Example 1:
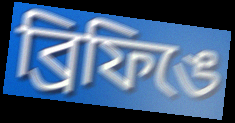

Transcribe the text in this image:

ব্রিফিঙে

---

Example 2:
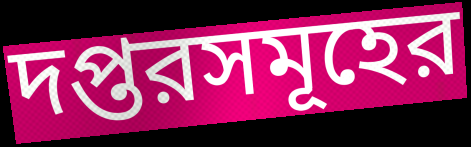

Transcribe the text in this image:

দপ্তরসমূহের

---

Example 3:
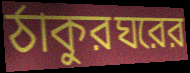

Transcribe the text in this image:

ঠাকুরঘরের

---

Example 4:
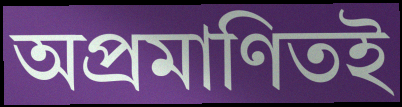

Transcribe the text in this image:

অপ্রমাণিতই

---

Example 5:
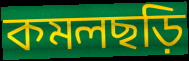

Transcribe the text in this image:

কমলছড়ি